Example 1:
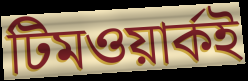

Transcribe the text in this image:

টিমওয়ার্কই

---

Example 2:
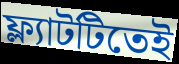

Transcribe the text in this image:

ফ্ল্যাটটিতেই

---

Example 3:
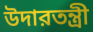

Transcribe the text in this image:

উদারতন্ত্রী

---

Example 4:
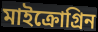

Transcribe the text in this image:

মাইক্রোগ্রিন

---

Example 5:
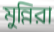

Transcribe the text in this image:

মুন্নিরা